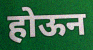
होऊन